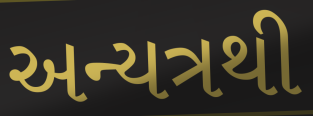
અન્યત્રથી